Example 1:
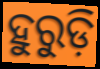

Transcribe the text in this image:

ହୁରୁଡ଼ି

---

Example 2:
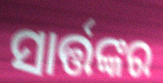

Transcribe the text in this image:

ସାର୍ତ୍ତଙ୍କର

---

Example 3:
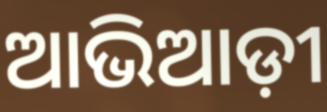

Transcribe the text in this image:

ଆଭିଆଡ଼ୀ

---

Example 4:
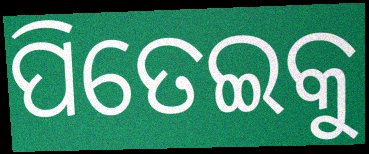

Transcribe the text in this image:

ପିତେଇକୁ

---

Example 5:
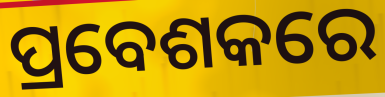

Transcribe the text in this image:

ପ୍ରବେଶକରେ